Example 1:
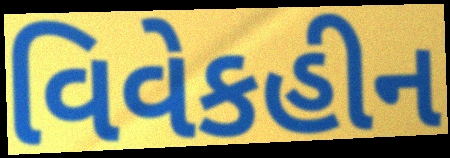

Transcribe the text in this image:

વિવેકહીન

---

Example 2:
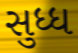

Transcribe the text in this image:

સુધ્ધ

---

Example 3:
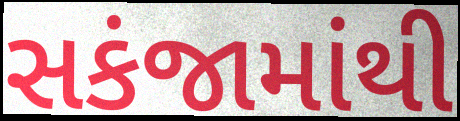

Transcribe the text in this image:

સકંજામાંથી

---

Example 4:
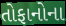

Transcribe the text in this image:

તોફાનોના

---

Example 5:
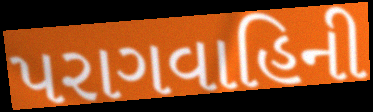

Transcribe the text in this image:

પરાગવાહિની